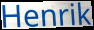
Henrik